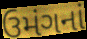
ઉમંગનાં